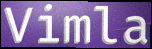
Vimla